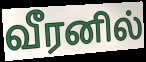
வீரனில்